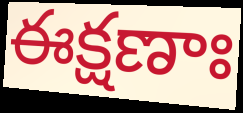
ఈక్షణాః